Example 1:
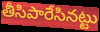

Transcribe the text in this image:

తీసిపారేసినట్టు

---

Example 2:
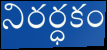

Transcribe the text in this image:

నిరర్ధకం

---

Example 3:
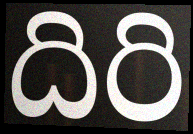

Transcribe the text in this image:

దిరి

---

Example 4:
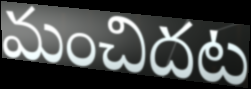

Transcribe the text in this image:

మంచిదట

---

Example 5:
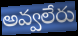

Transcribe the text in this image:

అవ్వలేరు